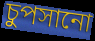
চুপসানো